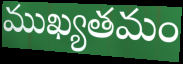
ముఖ్యతమం